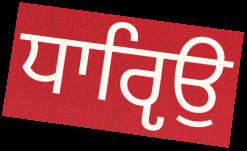
ਧਾਰੵਿਉ